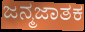
ಜನ್ಮಜಾತಕ